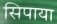
सिपाया